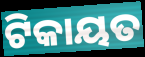
ଟିକାୟତ